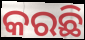
କରଛି